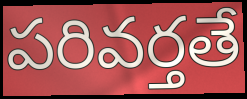
పరివర్తతే